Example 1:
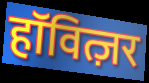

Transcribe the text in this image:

हॉवित्ज़र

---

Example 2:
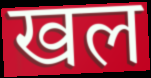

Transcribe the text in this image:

खल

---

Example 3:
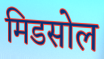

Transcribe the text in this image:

मिडसोल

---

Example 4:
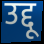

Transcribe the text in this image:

उद्दू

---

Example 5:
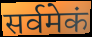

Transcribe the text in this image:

सर्वमेकं